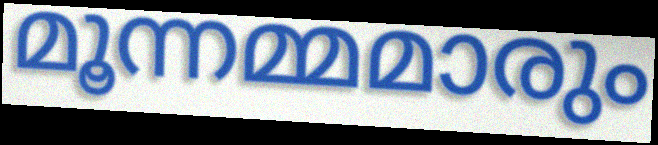
മൂന്നമ്മമാരും